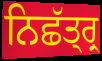
ਨਿਛੱਤ੍ਰ੍ਰ